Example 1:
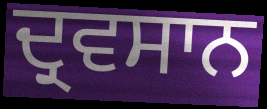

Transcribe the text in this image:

ਦ੍ਰਵਸਾਨ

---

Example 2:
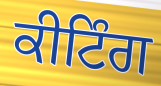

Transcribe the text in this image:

ਕੀਟਿੰਗ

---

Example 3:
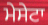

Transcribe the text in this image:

ਮੇਸੇਟਾ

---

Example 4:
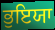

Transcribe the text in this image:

ਭੁਇਯਾ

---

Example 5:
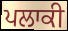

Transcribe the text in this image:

ਪਲਾਕੀ